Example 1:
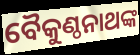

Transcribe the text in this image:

ବୈକୁଣ୍ଠନାଥଙ୍କ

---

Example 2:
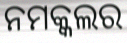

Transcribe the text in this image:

ନମକ୍କଲର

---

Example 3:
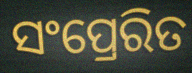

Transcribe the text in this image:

ସଂପ୍ରେରିତ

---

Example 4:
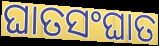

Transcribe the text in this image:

ଘାତସଂଘାତ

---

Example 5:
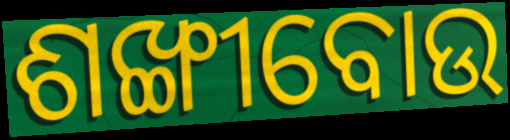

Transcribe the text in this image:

ଶଙ୍ଖୀବୋଉ